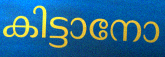
കിട്ടാനോ